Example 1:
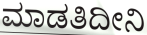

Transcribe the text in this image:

ಮಾಡತಿದೀನಿ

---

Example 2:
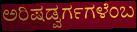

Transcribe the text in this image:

ಅರಿಷಡ್ವರ್ಗಗಳೆಂಬ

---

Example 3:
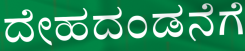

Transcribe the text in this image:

ದೇಹದಂಡನೆಗೆ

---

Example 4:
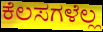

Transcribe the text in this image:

ಕೆಲಸಗಳೆಲ್ಲ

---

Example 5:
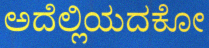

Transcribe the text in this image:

ಅದೆಲ್ಲಿಯದಕೋ